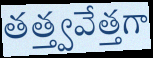
తత్త్వవేత్తగా